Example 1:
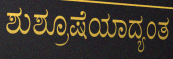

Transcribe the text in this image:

ಶುಶ್ರೂಷೆಯಾದ್ಯಂತ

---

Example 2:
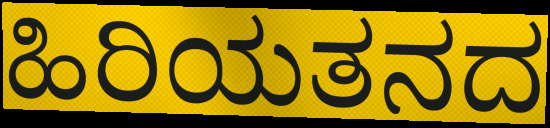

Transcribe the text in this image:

ಹಿರಿಯತನದ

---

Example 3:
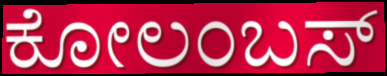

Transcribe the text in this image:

ಕೋಲಂಬಸ್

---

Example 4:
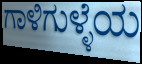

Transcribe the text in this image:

ಗಾಳಿಗುಳ್ಳೆಯ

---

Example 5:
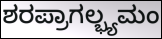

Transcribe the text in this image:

ಶರಪ್ರಾಗಲ್ಭ್ಯಮಂ